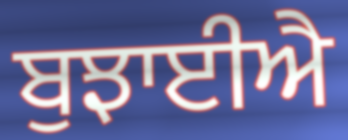
ਬੁਝਾਈਐ